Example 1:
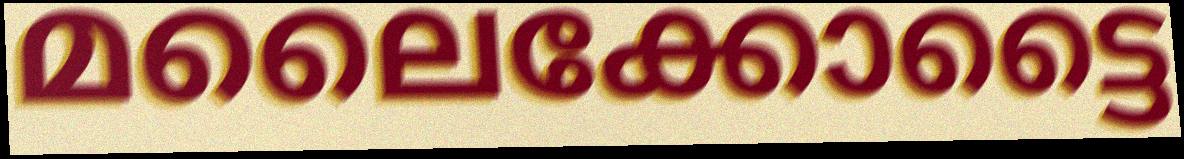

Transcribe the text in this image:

മലൈക്കോട്ടൈ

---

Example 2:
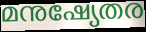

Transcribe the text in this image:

മനുഷ്യേതര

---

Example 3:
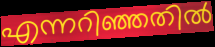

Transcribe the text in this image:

എന്നറിഞ്ഞതിൽ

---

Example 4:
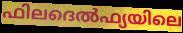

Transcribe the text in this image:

ഫിലദെൽഫ്യയിലെ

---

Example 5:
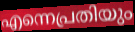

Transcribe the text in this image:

എന്നെപ്രതിയും